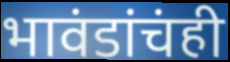
भावंडांचंही